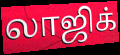
லாஜிக்